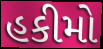
હકીમો